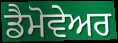
ਡੈਮੋਵੇਅਰ